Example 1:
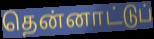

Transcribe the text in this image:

தென்னாட்டுப்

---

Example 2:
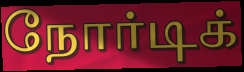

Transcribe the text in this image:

நோர்டிக்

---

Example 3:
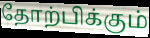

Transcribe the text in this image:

தோற்பிக்கும்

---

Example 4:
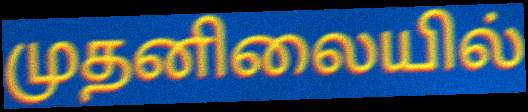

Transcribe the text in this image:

முதனிலையில்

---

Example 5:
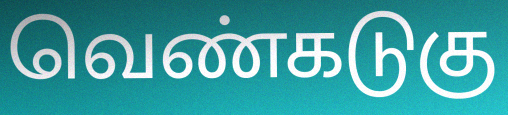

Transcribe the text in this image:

வெண்கடுகு